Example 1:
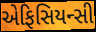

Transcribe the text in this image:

એફિસિયન્સી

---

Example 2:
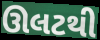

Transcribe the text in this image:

ઊલટથી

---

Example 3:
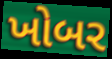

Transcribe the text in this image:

ખોબર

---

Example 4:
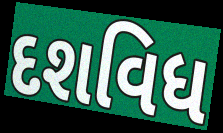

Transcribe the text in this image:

દશવિધ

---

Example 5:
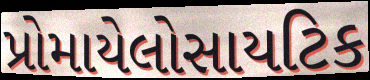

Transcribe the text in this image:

પ્રોમાયેલોસાયટિક